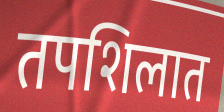
तपशिलात